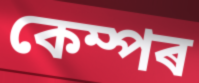
কেম্পৰ